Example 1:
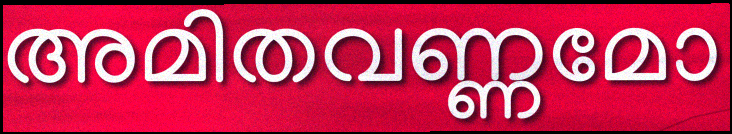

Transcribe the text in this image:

അമിതവണ്ണമോ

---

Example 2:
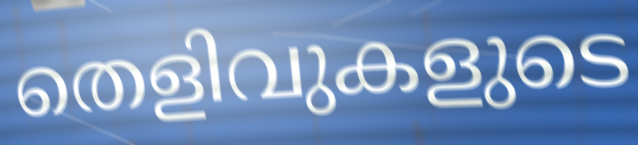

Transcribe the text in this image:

തെളിവുകളുടെ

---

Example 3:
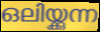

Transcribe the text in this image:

ഒലിയ്ക്കുന്ന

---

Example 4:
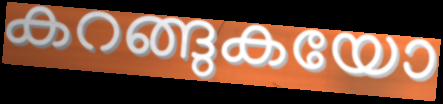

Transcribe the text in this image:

കറങ്ങുകയോ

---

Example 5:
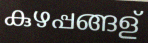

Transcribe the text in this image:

കുഴപ്പങ്ങള്